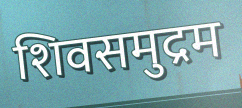
शिवसमुद्रम